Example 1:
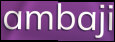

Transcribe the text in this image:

ambaji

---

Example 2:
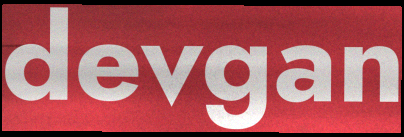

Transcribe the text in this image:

devgan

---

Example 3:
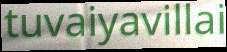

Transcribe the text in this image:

tuvaiyavillai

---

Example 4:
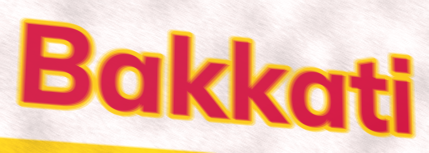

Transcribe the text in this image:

Bakkati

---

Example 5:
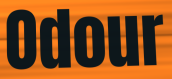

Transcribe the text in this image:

Odour